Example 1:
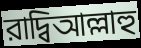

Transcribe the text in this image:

রাদ্বিআল্লাহু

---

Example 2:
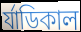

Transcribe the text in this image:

র্যাডিকাল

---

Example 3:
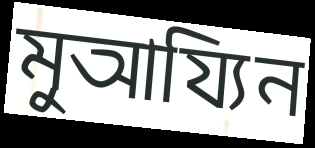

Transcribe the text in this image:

মুআয্যিন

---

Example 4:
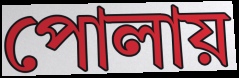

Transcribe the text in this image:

পোলায়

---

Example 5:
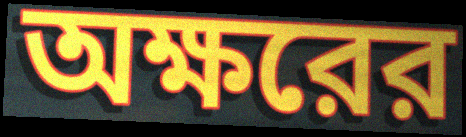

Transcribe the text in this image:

অক্ষরের